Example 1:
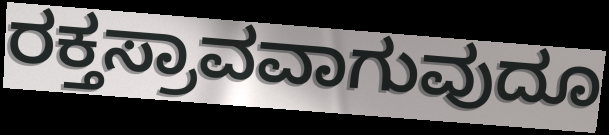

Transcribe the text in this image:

ರಕ್ತಸ್ರಾವವಾಗುವುದೂ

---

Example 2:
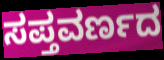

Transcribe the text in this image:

ಸಪ್ತವರ್ಣದ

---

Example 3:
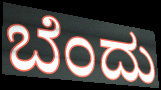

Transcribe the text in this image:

ಬೆಂದು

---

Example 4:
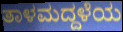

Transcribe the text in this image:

ತಾಳಮದ್ದಳೆಯ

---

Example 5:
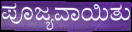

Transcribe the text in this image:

ಪೂಜ್ಯವಾಯಿತು